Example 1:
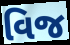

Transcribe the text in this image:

વિજ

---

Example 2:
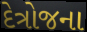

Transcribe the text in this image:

દેત્રોજના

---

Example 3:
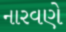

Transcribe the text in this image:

નારવણે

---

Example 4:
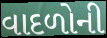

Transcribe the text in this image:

વાદળોની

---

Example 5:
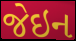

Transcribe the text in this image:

જેઇન